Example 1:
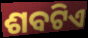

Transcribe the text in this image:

ଶବଟିଏ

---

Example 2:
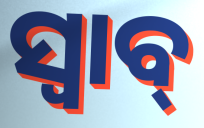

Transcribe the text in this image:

ସ୍ବାବ୍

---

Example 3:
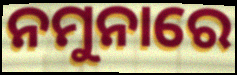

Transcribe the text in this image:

ନମୁନାରେ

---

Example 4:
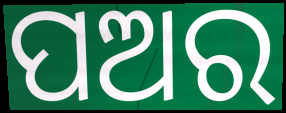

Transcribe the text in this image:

ପଅର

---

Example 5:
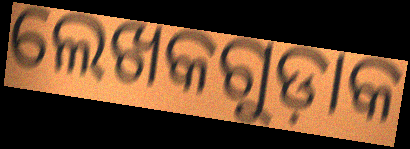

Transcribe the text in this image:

ଲେଖକଗୁଡ଼ାକ